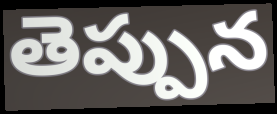
తెప్పున